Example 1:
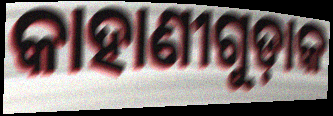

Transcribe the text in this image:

କାହାଣୀଗୁଡ଼ାକ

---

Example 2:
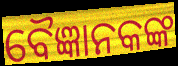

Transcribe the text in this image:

ବୈଜ୍ଞାନକଙ୍କ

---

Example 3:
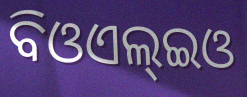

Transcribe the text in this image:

ବିଓଏଲ୍ଇଓ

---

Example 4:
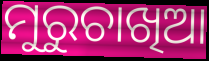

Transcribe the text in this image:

ମୁରୁଚାଖିଆ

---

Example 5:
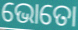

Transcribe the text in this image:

ଭୋତୋ